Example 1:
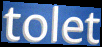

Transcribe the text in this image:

tolet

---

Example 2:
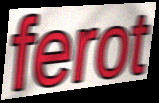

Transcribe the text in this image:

ferot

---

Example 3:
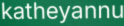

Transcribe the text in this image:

katheyannu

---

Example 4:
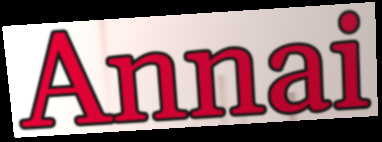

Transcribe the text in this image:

Annai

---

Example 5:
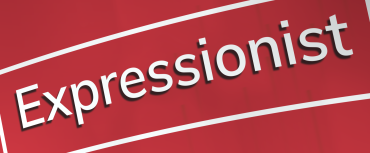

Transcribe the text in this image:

Expressionist